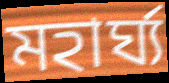
মহার্ঘ্য